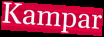
Kampar